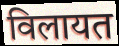
विलायत